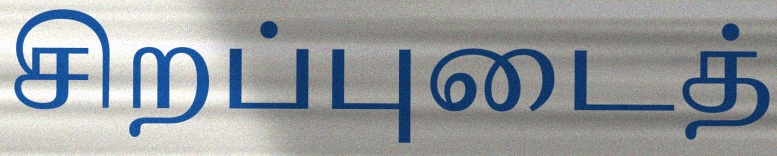
சிறப்புடைத்